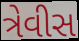
ત્રેવીસ